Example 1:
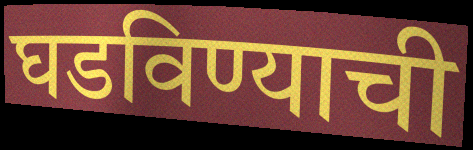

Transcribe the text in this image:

घडविण्याची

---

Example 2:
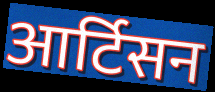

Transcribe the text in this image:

आर्टिसन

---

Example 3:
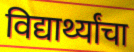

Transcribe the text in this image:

विद्यार्थ्यांचा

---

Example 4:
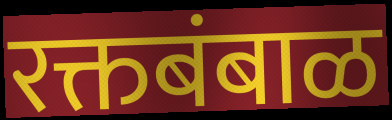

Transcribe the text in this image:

रक्तबंबाळ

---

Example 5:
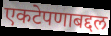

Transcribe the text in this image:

एकटेपणाबद्दल